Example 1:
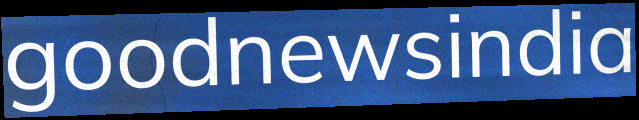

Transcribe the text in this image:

goodnewsindia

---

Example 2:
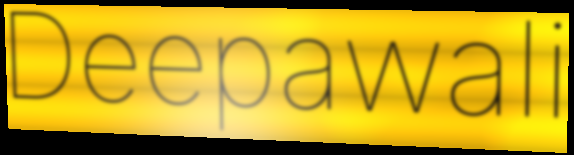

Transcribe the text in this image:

Deepawali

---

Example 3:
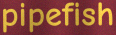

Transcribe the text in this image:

pipefish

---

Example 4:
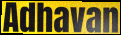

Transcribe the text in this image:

Adhavan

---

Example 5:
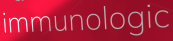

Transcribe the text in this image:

immunologic